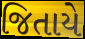
જિતાયે